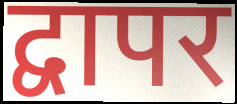
द्वापर